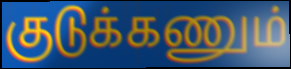
குடுக்கணும்